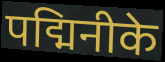
पद्मिनीके